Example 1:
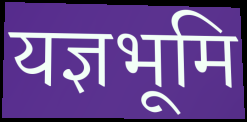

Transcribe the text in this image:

यज्ञभूमि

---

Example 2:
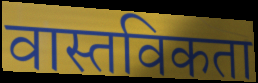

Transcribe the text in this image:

वास्तविकता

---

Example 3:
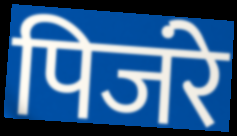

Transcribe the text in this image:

पिजंरे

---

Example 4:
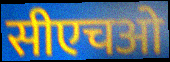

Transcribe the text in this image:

सीएचओ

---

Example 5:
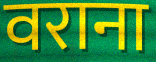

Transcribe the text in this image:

वराना